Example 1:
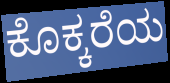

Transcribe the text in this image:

ಕೊಕ್ಕರೆಯ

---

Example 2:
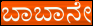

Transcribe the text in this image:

ಬಾಬಾನೇ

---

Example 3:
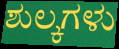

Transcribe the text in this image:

ಶುಲ್ಕಗಳು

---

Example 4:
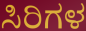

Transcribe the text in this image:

ಸಿರಿಗಳ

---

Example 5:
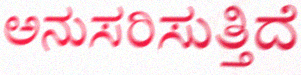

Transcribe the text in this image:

ಅನುಸರಿಸುತ್ತಿದೆ